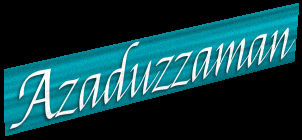
Azaduzzaman